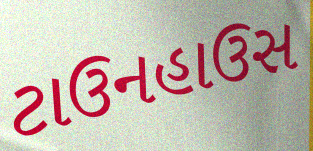
ટાઉનહાઉસ